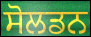
ਸੋਲਡਨ